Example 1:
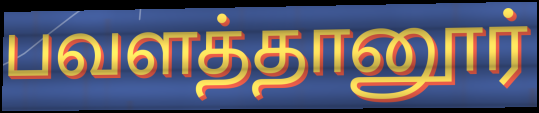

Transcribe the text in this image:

பவளத்தானூர்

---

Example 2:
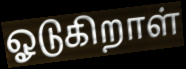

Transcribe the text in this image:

ஓடுகிறாள்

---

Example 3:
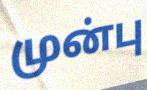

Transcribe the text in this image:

முன்பு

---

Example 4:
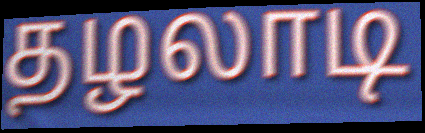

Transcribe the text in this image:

தழலாடி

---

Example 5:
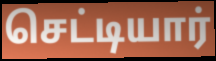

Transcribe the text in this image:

செட்டியார்